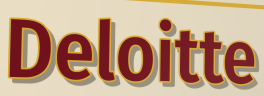
Deloitte